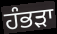
ਹੰਭੜਾ